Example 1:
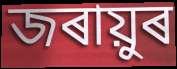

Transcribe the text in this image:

জৰায়ুৰ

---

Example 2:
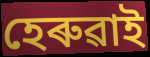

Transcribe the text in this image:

হেৰুৱাই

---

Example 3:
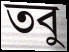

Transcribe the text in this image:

তবু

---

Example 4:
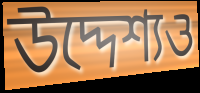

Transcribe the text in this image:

উদ্দেশ্যও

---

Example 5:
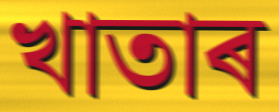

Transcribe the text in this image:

খাতাৰ